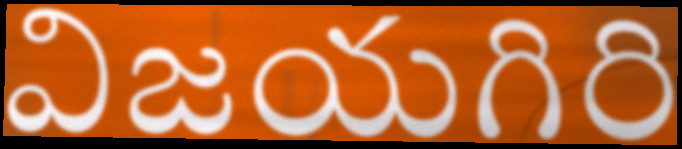
విజయగిరి